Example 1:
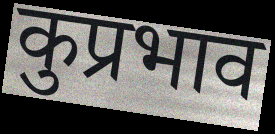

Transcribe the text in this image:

कुप्रभाव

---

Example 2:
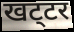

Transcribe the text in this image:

खट्‌टर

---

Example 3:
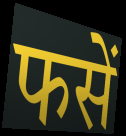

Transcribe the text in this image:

फसें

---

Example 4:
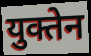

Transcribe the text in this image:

युक्तेन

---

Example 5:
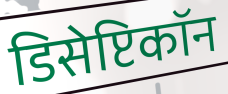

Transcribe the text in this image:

डिसेप्टिकॉन